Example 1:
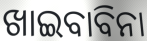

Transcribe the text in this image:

ଖାଇବାବିନା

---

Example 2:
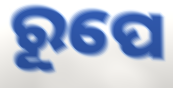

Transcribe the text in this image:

ରୂପେ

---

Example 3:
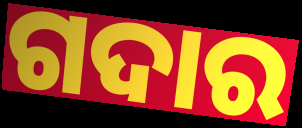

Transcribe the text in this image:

ଗଦାର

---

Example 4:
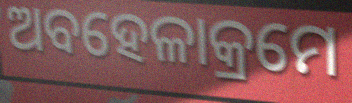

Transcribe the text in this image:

ଅବହେଳାକ୍ରମେ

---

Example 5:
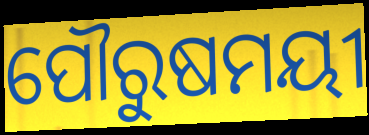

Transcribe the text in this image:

ପୌରୁଷମୟୀ